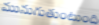
మునుగుతుంటుంది